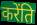
करेंति